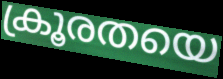
ക്രൂരതയെ